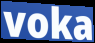
voka